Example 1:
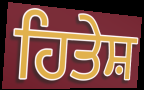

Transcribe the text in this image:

ਹਿਤੇਸ਼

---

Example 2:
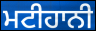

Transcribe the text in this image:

ਮਟੀਹਾਨੀ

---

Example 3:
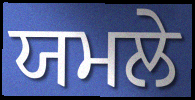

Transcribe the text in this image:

ਯਮਲੇ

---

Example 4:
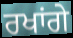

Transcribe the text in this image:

ਰਖਾਂਗੇ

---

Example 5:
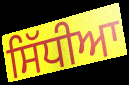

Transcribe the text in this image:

ਸਿੱਧੀਆ